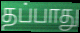
தப்பாது